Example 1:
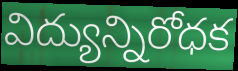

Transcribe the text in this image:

విద్యున్నిరోధక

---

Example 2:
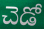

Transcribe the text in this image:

చెడో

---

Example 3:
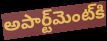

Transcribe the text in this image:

అపార్ట్‌మెంట్‌కి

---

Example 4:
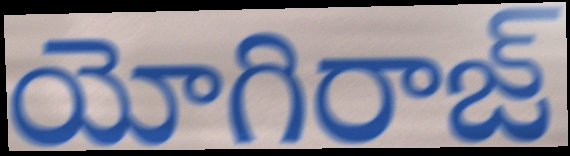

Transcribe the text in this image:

యోగిరాజ్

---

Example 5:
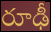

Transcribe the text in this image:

రూఢీ